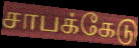
சாபக்கேடு